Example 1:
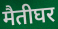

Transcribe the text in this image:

मैतीघर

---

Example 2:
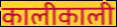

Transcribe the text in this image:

कालीकाली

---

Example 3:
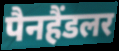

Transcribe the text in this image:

पैनहैंडलर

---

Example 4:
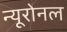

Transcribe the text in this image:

न्यूरोनल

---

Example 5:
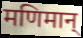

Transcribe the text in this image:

मणिमान्